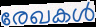
രേഖകൾ